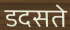
डदसते